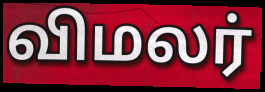
விமலர்